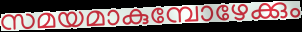
സമയമാകുമ്പോഴേക്കും